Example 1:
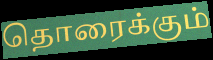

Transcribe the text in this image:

தொரைக்கும்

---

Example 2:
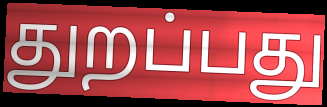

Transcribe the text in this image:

துறப்பது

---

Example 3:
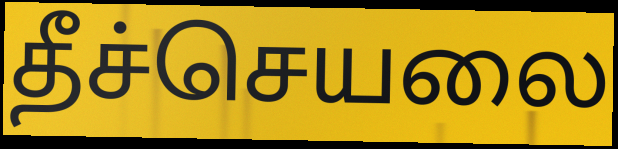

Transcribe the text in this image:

தீச்செயலை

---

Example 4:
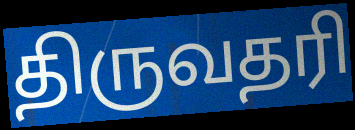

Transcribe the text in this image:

திருவதரி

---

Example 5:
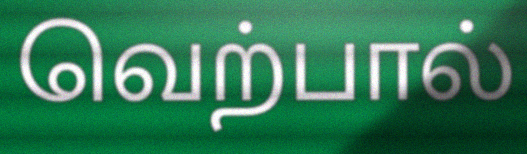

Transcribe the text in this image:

வெற்பால்